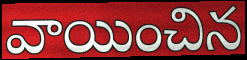
వాయించిన